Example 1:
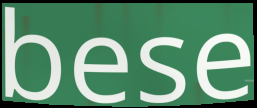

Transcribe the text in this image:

bese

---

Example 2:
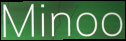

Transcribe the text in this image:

Minoo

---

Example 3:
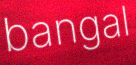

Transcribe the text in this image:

bangal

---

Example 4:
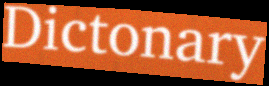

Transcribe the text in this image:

Dictonary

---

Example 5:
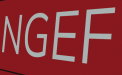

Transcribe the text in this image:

NGEF